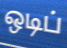
ஒடிப்